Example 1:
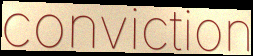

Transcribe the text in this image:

conviction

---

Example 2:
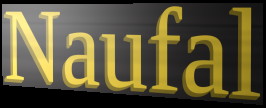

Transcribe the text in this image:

Naufal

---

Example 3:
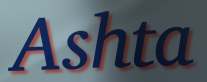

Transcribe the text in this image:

Ashta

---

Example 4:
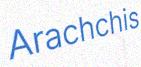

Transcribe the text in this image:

Arachchis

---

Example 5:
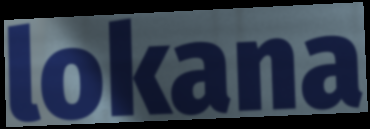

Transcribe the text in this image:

lokana